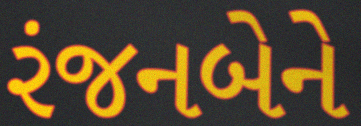
રંજનબેને